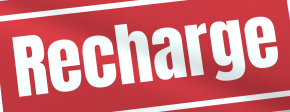
Recharge